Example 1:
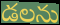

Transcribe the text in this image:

డలను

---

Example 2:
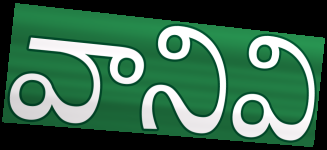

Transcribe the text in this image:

వానివి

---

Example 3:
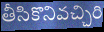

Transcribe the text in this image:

తీసికొనివచ్చిరి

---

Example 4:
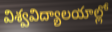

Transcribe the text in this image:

విశ్వవిద్యాలయాల్లో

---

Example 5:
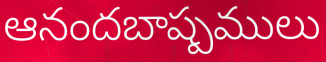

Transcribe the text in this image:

ఆనందబాష్పములు